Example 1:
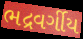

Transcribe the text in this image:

ભદ્રવર્ગીય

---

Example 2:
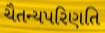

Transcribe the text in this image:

ચૈતન્યપરિણતિ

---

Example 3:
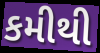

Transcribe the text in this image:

કમીથી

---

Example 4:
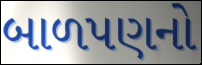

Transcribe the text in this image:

બાળપણનો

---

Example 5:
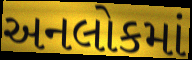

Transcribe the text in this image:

અનલોકમાં